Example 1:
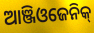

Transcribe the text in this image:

ଆଞ୍ଜିଓଜେନିକ୍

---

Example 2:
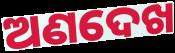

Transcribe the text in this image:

ଅଣଦେଖ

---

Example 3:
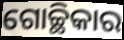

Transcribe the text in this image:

ଗୋଚ୍ଛିକାର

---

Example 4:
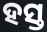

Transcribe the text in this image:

ହସ୍ତ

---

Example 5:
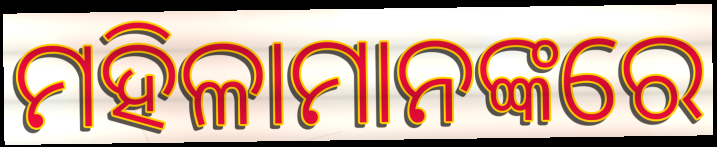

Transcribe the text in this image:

ମହିଳାମାନଙ୍କରେ